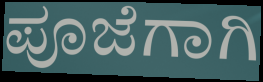
ಪೂಜೆಗಾಗಿ